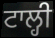
ਟਾਲ੍ਹੀ